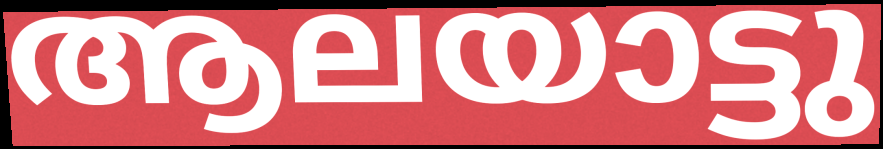
ആലയാട്ടു